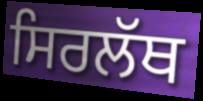
ਸਿਰਲੱਥ